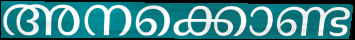
അനക്കൊണ്ട